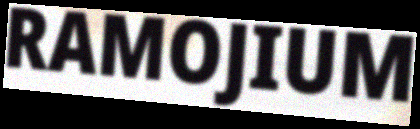
RAMOJIUM